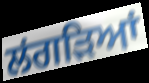
ਲਂਗੜਿਆਂ